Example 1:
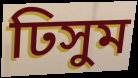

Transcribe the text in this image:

ঢিসুম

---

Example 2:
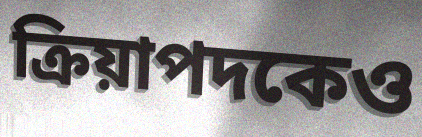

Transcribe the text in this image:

ক্রিয়াপদকেও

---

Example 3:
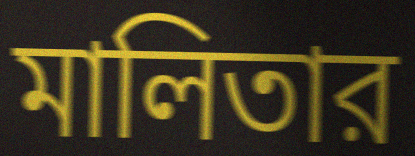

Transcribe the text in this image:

মালিতার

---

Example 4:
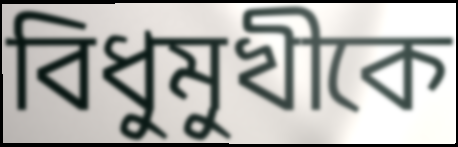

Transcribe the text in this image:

বিধুমুখীকে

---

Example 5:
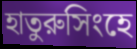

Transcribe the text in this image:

হাতুরুসিংহে